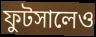
ফুটসালেও